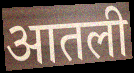
आतली